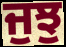
ਜੁਝੁ